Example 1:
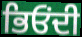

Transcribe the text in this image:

ਭਿਓਂਦੀ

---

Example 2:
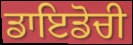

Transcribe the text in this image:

ਡਾਇਡੋਚੀ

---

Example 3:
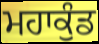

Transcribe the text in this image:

ਮਹਾਕੁੰਡ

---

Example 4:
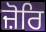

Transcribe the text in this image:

ਜ਼ੋਰਿ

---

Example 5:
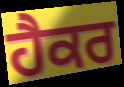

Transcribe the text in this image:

ਹੈਕਰ